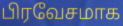
பிரவேசமாக